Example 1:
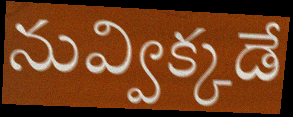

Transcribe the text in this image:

నువ్విక్కడే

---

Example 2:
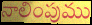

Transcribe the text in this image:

నాలింపుము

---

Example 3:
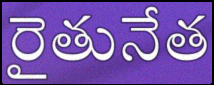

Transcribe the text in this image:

రైతునేత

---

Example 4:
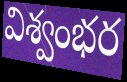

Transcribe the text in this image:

విశ్వంభర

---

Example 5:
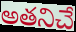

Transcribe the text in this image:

అతనిచే